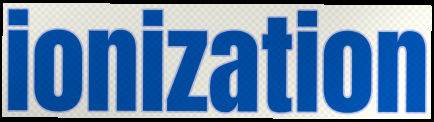
ionization